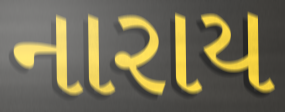
નારાય